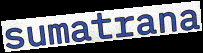
sumatrana